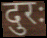
दुरः